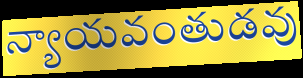
న్యాయవంతుడవు